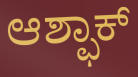
ಆಶ್ಫಾಕ್